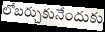
లోబర్చుకునేందుకు